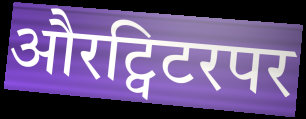
औरट्विटरपर